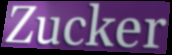
Zucker